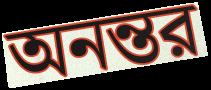
অনন্তর